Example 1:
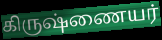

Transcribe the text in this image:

கிருஷ்ணையர்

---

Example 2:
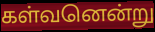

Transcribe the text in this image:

கள்வனென்று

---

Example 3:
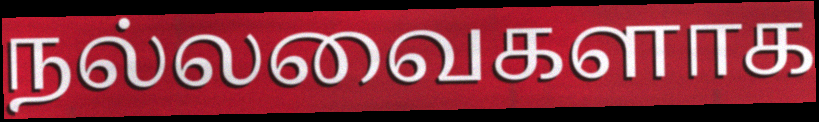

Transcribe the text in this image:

நல்லவைகளாக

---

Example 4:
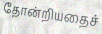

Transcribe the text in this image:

தோன்றியதைச்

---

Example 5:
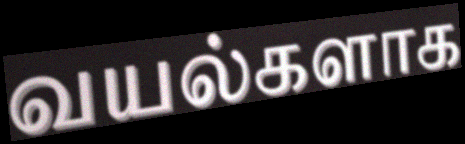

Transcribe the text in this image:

வயல்களாக